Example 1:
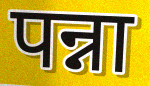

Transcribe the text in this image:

पन्ना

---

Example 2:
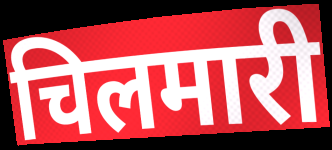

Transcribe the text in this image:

चिलमारी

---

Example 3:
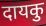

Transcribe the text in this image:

दायकु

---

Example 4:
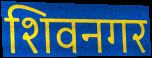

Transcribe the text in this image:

शिवनगर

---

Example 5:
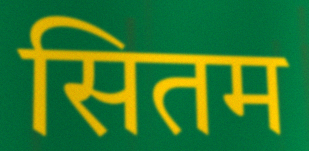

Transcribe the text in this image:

सितम